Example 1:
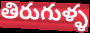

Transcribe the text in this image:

తిరుగుళ్ళ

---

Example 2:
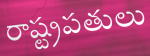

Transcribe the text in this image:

రాష్ట్రపతులు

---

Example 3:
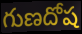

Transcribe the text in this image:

గుణదోష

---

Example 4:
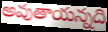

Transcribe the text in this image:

అవుతాయన్నది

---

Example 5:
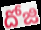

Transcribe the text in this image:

దోజి